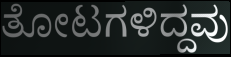
ತೋಟಗಳಿದ್ದವು